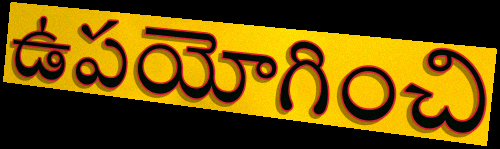
ఉపయోగించి